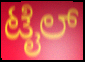
ಟೈಲ್